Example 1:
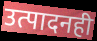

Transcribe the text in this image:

उत्पादनही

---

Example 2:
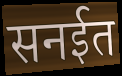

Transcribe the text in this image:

सनईत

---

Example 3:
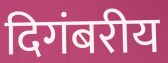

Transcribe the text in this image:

दिगंबरीय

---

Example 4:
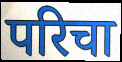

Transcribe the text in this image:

परिचा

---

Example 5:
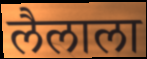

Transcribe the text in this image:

लैलाला